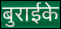
बुराईके